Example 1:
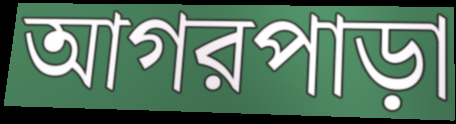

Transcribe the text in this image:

আগরপাড়া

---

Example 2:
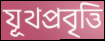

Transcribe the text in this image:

যূথপ্রবৃত্তি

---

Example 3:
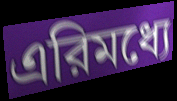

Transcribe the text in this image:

এরিমধ্যে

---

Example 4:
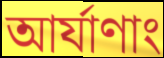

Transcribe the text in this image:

আর্যাণাং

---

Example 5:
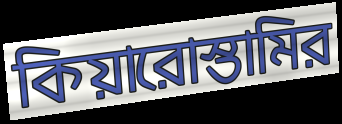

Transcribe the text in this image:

কিয়ারোস্তামির